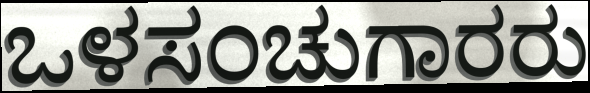
ಒಳಸಂಚುಗಾರರು